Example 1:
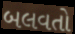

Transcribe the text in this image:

બલવતો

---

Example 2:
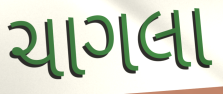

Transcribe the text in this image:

ચાગલા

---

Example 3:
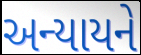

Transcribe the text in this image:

અન્યાયને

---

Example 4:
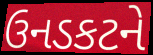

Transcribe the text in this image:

ઉનડકટને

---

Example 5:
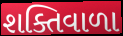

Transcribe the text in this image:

શક્તિવાળા